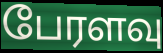
பேரளவு